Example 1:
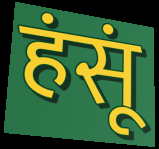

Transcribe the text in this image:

हंसूं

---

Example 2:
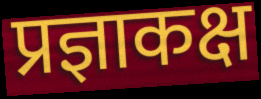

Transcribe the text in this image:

प्रज्ञाकक्ष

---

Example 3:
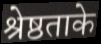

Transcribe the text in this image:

श्रेष्ठताके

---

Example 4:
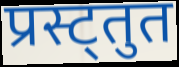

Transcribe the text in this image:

प्रस्ट्तुत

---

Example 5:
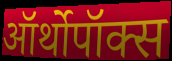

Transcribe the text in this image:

ऑर्थोपॉक्स